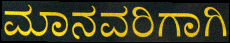
ಮಾನವರಿಗಾಗಿ